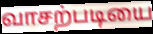
வாசற்படியை